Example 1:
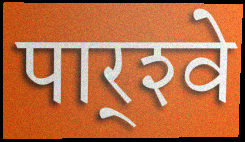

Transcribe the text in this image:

पार्श्वे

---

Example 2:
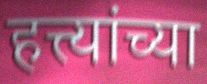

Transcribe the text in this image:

हत्त्यांच्या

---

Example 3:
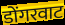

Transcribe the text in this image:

डोंगरवाट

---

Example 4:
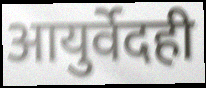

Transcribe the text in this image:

आयुर्वेदही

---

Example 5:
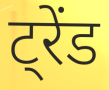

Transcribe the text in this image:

ट्रेंड